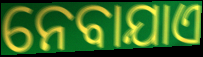
ନେବାଯାଏ